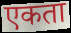
एकता